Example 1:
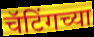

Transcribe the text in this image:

चॅटिंगच्या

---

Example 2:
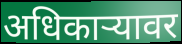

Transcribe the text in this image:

अधिकार्‍यावर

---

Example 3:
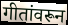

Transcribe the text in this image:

गीतांवरून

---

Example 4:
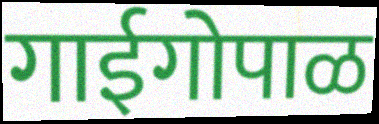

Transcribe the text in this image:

गाईगोपाळ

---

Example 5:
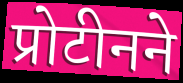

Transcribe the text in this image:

प्रोटीनने